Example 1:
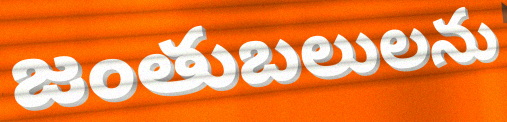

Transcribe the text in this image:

జంతుబలులను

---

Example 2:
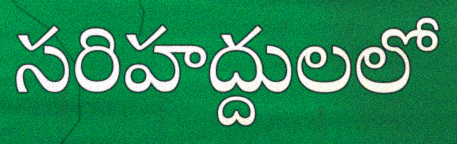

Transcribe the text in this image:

సరిహద్దులలో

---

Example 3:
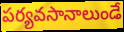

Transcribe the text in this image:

పర్యవసానాలుండే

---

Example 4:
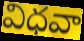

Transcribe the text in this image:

విధవా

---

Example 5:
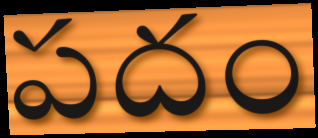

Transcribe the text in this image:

పదం